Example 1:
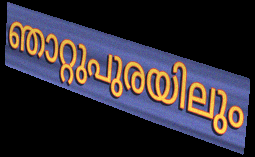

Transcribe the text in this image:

ഞാറ്റുപുരയിലും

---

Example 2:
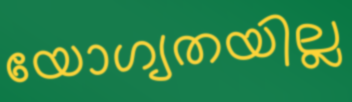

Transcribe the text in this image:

യോഗ്യതയില്ല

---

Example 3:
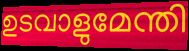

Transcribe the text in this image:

ഉടവാളുമേന്തി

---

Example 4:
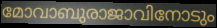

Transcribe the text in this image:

മോവാബുരാജാവിനോടും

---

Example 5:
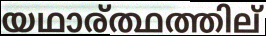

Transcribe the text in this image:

യഥാര്ത്ഥത്തില്